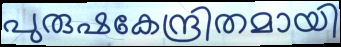
പുരുഷകേന്ദ്രിതമായി